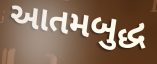
આતમબુદ્ધ